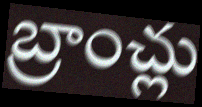
బ్రాంచ్లు